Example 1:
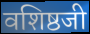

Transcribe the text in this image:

वशिष्ठजी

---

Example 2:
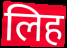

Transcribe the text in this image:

लिह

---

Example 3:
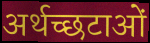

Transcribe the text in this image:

अर्थच्छटाओं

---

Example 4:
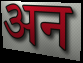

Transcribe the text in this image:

अन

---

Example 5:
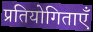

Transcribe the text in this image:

प्रतियोगिताएँ